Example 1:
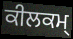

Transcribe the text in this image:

ਕੀਲਕਮ੍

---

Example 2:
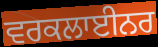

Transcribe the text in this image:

ਵਰਕਲਾਈਨਰ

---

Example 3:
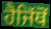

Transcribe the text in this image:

ਹੈਜਿੱਥੋਂ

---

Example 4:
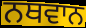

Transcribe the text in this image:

ਨਥਵਾਨ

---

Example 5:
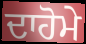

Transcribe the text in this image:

ਦਾਹੋਮੇ